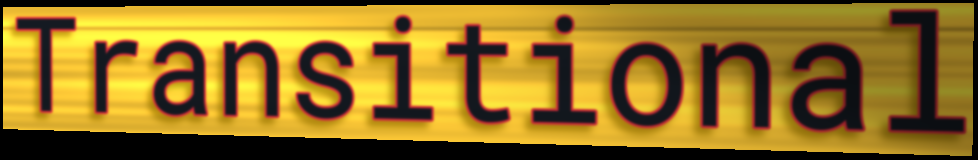
Transitional